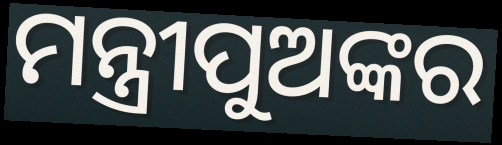
ମନ୍ତ୍ରୀପୁଅଙ୍କର